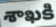
శాఖకి